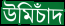
উমিচাঁদ